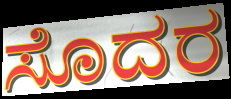
ಸೊದರ